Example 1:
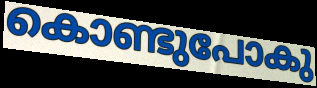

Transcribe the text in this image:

കൊണ്ടുപോകു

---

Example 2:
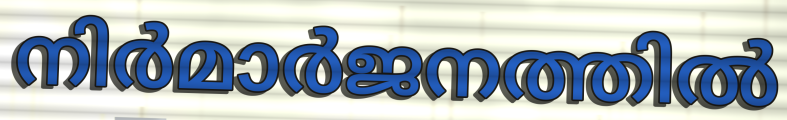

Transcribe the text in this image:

നിർമാർജനത്തിൽ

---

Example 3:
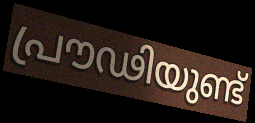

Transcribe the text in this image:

പ്രൗഢിയുണ്ട്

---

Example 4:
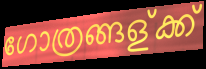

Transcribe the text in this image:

ഗോത്രങ്ങള്ക്ക്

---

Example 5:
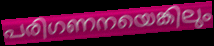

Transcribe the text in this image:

പരിഗണനയെങ്കിലും